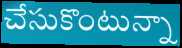
చేసుకొంటున్నా